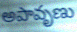
అపావృణు